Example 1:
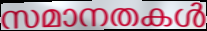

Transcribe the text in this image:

സമാനതകൾ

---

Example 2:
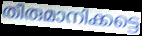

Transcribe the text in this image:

തീരുമാനിക്കട്ടെ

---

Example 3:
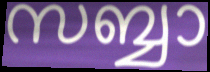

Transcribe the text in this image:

സബ്ബാ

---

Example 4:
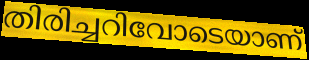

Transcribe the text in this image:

തിരിച്ചറിവോടെയാണ്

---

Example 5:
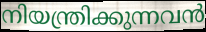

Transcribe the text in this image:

നിയന്ത്രിക്കുന്നവൻ